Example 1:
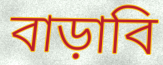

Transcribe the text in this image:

বাড়াবি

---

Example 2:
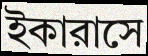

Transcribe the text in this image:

ইকারাসে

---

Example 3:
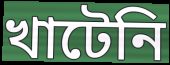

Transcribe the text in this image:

খাটেনি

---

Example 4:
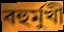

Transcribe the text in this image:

বহুর্মুখী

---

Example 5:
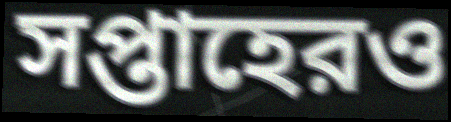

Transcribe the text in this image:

সপ্তাহেরও